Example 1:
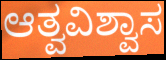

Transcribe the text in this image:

ಆತ್ವವಿಶ್ವಾಸ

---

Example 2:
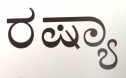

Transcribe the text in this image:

ರಷ್ಯಾ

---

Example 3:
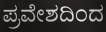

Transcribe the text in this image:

ಪ್ರವೇಶದಿಂದ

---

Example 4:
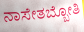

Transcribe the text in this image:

ನಾಸೇತಬ್ಬೋತಿ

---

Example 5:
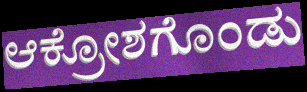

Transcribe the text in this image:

ಆಕ್ರೋಶಗೊಂಡು